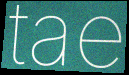
tae